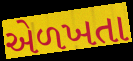
એળખતા